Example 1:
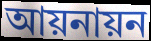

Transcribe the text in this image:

আয়নায়ন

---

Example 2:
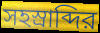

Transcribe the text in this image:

সহস্রাব্দির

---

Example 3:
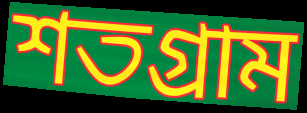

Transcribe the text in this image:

শতগ্রাম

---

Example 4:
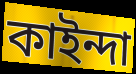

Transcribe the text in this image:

কাইন্দা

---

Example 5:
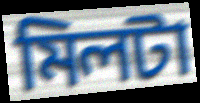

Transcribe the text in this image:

মিলটা